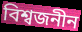
বিশ্বজনীন